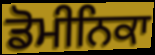
ਡੋਮੀਨਿਕਾ